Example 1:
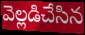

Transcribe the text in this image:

వెల్లడిచేసిన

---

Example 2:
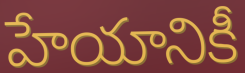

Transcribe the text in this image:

హేయానికీ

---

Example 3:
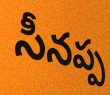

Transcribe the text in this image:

సీనప్ప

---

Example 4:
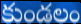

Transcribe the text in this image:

కుండలం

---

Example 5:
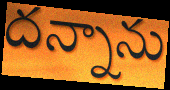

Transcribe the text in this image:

దన్నాను